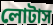
লোটাস